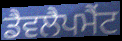
ਡੈਵਲੈਪਮੈਂਟ